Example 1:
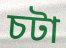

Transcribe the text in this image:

চটা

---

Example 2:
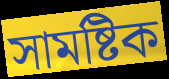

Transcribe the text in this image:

সামষ্টিক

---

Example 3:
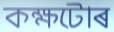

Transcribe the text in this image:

কক্ষটোৰ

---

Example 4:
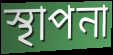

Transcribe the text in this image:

স্থাপনা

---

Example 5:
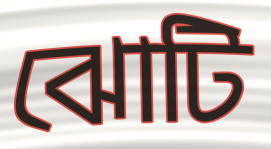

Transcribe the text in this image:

ঝোটি